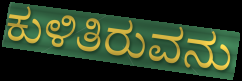
ಕುಳಿತಿರುವನು